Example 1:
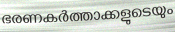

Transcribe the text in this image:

ഭരണകർത്താക്കളുടെയും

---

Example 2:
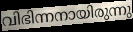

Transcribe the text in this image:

വിഭിന്നനായിരുന്നു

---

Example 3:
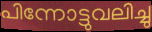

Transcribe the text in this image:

പിന്നോട്ടുവലിച്ചു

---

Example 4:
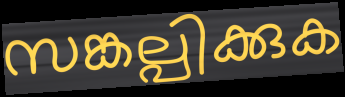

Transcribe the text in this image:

സങ്കല്പിക്കുക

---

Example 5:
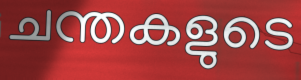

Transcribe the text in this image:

ചന്തകളുടെ